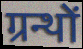
ग्रन्थों